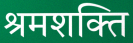
श्रमशक्ति